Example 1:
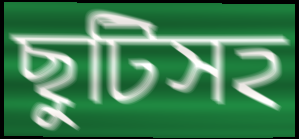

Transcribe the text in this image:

ছুটিসহ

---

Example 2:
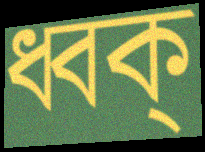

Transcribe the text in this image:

ধ্বক্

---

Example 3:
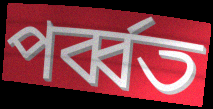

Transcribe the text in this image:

পর্ব্বত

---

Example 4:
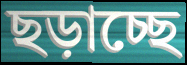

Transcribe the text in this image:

ছড়াচ্ছে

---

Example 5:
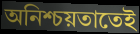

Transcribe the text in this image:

অনিশ্চয়তাতেই